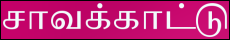
சாவக்காட்டு